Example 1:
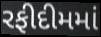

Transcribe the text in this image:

રફીદીમમાં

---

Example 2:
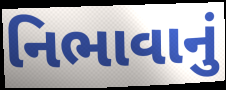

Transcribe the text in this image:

નિભાવાનું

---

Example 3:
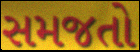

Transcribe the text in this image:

સમજતો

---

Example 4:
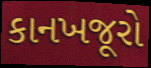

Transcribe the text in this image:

કાનખજૂરો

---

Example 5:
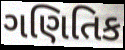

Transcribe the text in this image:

ગણિતિક